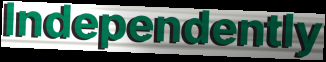
Independently